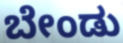
ಬೇಂಡು